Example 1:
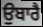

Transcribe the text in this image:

ਉਬਾਰੈ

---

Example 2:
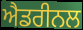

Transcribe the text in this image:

ਐਡਰੀਨਲ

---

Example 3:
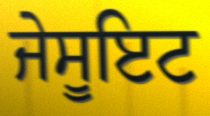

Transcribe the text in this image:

ਜੇਸੂਇਟ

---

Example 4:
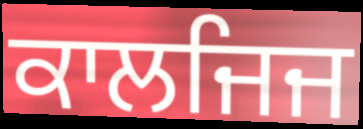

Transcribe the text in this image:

ਕਾਲਜਿਜ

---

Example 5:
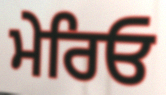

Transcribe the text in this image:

ਮੇਰਿਓ